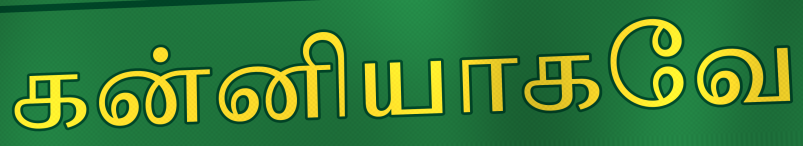
கன்னியாகவே